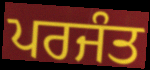
ਪਰਜੰਤ